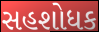
સહશોધક